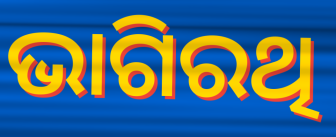
ଭାଗିରଥି